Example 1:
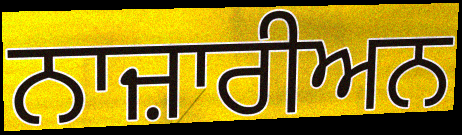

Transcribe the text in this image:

ਨਾਜ਼ਾਰੀਅਨ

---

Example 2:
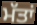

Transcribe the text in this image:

ਮੱਤਾਂ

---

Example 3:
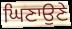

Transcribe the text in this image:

ਘਿਣਾਉਣੇ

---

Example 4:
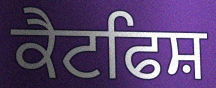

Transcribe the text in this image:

ਕੈਟਫਿਸ਼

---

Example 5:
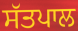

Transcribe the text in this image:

ਸੱਤਪਾਲ